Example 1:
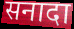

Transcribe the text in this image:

सनादा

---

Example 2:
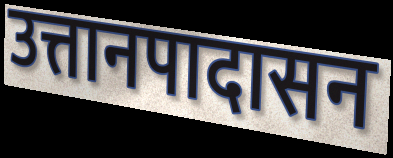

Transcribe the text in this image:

उत्तानपादासन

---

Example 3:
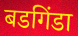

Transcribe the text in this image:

बडगिंडा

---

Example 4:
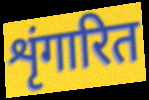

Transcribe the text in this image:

शृंगारित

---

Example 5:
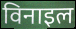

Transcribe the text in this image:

विनाइल